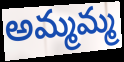
అమ్మమ్మ